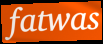
fatwas